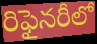
రిఫైనరీలో